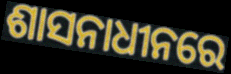
ଶାସନାଧୀନରେ